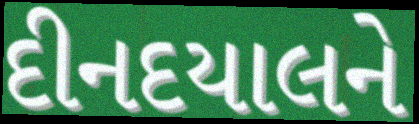
દીનદયાલને